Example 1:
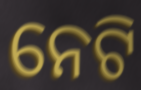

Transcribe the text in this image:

ନେଟି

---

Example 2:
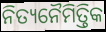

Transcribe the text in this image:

ନିତ୍ୟନୈମିତ୍ତିକ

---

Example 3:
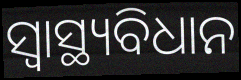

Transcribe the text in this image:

ସ୍ୱାସ୍ଥ୍ୟବିଧାନ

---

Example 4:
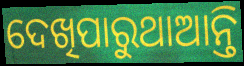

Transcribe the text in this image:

ଦେଖିପାରୁଥାଆନ୍ତି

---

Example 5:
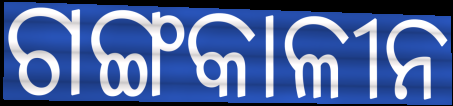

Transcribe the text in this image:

ଗଙ୍ଗକାଳୀନ